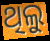
ଥିଲୁ